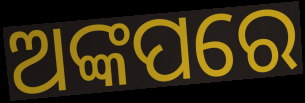
ଅଙ୍କପରେ